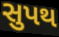
સુપથ